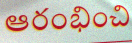
ఆరంభించి